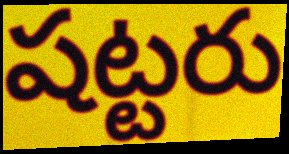
షట్టరు